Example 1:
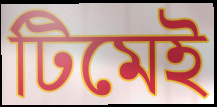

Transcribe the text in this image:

টিমেই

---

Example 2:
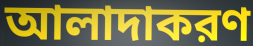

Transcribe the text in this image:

আলাদাকরণ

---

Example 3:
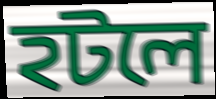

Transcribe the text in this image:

হটলে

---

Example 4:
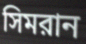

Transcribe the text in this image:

সিমরান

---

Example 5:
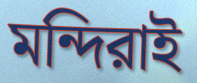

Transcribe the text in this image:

মন্দিরাই